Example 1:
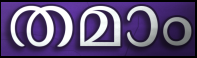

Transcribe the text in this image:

തമാം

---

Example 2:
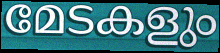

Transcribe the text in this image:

മേടകളും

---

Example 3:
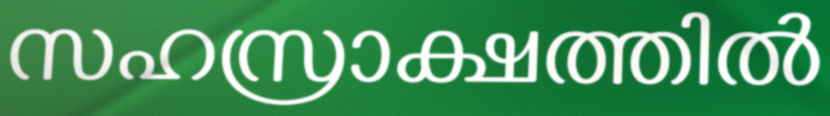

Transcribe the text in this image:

സഹസ്രാക്ഷത്തിൽ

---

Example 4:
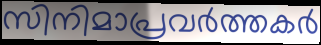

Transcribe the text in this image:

സിനിമാപ്രവർത്തകർ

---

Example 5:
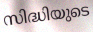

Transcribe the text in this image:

സിദ്ധിയുടെ